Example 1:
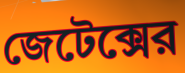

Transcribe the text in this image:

জেটেক্সের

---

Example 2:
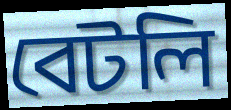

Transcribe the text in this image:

বেটলি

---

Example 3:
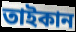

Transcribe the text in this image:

তাইকান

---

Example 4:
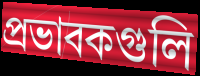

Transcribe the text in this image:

প্রভাবকগুলি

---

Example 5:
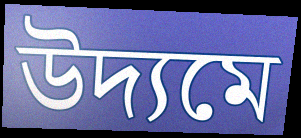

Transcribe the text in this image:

উদ্যমে